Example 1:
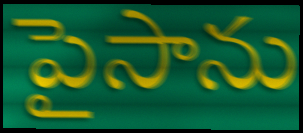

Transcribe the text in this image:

పైసాను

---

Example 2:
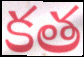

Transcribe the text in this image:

కత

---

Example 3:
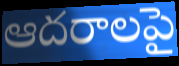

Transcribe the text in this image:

ఆదరాలపై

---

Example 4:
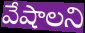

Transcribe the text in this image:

వేషాలని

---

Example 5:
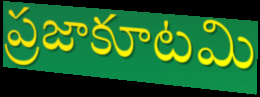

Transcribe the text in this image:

ప్రజాకూటమి